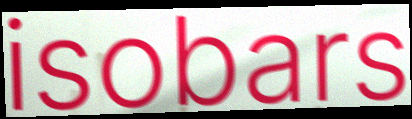
isobars